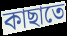
কাছাতে